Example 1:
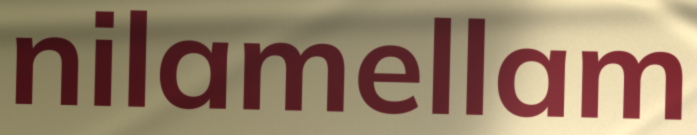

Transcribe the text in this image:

nilamellam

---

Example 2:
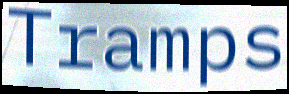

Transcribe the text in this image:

Tramps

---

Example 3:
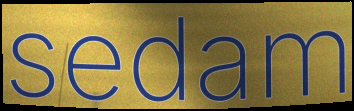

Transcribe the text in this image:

sedam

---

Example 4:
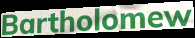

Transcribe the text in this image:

Bartholomew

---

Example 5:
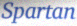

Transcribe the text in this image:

Spartan